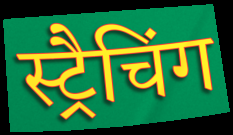
स्ट्रैचिंग